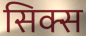
सिक्स